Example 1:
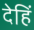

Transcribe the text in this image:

देहिं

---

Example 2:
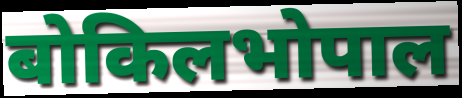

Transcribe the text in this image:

बोकिलभोपाल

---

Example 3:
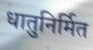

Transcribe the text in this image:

धातुनिर्मित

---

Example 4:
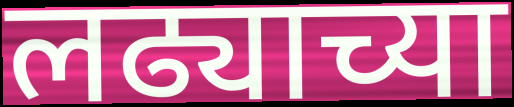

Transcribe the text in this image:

लढ्याच्या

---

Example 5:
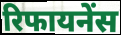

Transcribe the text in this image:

रिफायनेंस